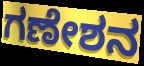
ಗಣೇಶನ